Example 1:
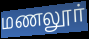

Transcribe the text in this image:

மணலூர்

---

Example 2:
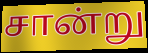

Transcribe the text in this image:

சான்று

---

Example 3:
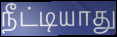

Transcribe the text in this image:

நீட்டியாது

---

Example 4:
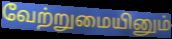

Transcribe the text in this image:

வேற்றுமையினும்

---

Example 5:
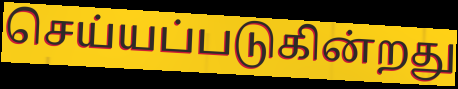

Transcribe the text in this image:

செய்யப்படுகின்றது